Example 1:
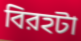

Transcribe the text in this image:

বিরহটা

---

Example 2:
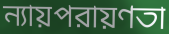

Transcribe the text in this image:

ন্যায়পরায়ণতা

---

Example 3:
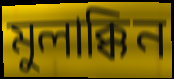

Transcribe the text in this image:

মুলাক্কিন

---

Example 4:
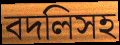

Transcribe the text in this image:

বদলিসহ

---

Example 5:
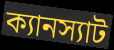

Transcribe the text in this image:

ক্যানস্যাট